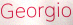
Georgio